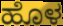
ಹೊಳ